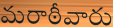
మరాఠీవారు